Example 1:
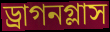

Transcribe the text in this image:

ড্রাগনগ্লাস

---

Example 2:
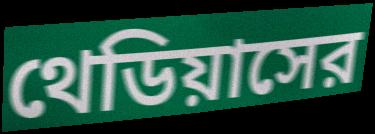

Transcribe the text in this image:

থেডিয়াসের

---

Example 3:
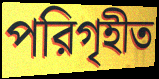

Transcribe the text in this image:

পরিগৃহীত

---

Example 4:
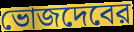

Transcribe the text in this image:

ভোজদেবের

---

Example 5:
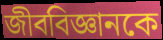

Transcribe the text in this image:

জীববিজ্ঞানকে